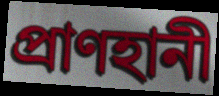
প্রাণহানী